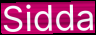
Sidda